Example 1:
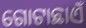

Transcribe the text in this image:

ଗୋଟାଛାଏଁ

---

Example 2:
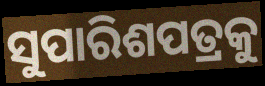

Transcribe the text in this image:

ସୁପାରିଶପତ୍ରକୁ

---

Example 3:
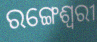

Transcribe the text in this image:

ରଙ୍ଗେଶ୍ୱରୀ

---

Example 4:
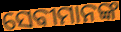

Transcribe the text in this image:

ସେବୀମାନଙ୍କ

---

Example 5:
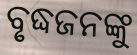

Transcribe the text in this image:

ବୃଦ୍ଧଜନଙ୍କୁ